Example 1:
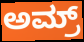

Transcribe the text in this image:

ಅಮ್ರ್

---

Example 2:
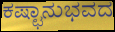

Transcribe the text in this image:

ಕಷ್ಟಾನುಭವದ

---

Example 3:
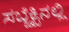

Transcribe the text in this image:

ಸಬ್ಜೆಕ್ಟಿನಲ್ಲಿ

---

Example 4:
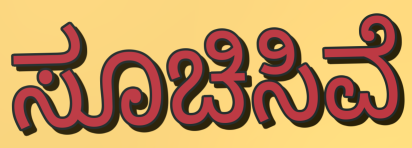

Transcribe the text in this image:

ಸೂಚಿಸಿವೆ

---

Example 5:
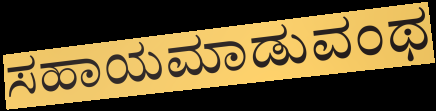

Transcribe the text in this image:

ಸಹಾಯಮಾಡುವಂಥ